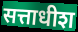
सत्ताधीश